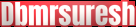
Dbmrsuresh